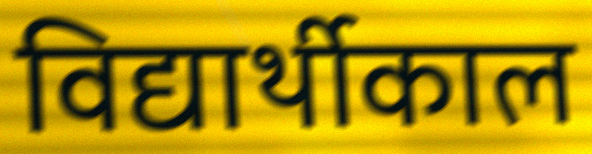
विद्यार्थीकाल